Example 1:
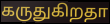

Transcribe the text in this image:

கருதுகிறதா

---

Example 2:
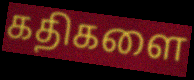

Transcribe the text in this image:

கதிகளை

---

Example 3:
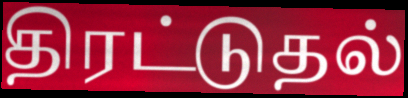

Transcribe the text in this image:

திரட்டுதல்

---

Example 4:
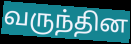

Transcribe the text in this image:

வருந்தின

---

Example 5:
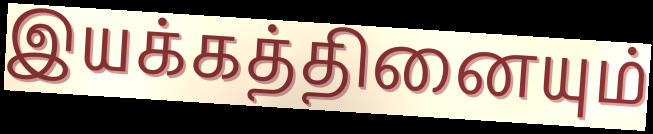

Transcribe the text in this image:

இயக்கத்தினையும்